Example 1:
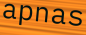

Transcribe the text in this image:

apnas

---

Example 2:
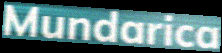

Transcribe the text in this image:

Mundarica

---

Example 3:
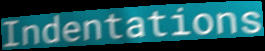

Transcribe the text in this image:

Indentations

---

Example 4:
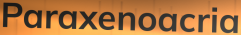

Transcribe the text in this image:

Paraxenoacria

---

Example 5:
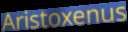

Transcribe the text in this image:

Aristoxenus